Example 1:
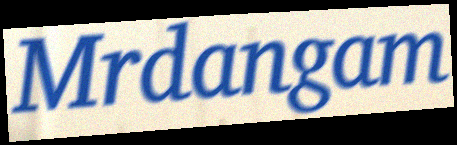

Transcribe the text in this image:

Mrdangam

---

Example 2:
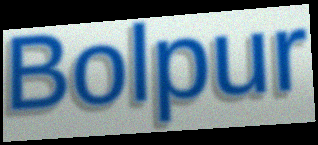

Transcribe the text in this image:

Bolpur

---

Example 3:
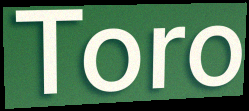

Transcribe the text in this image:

Toro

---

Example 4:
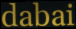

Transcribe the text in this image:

dabai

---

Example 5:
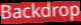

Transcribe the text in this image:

Backdrop